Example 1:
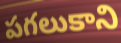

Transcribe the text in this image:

పగలుకాని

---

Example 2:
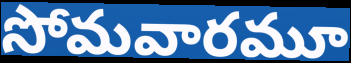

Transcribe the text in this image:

సోమవారమూ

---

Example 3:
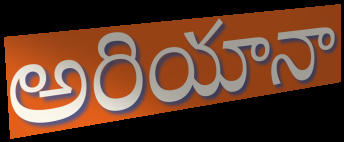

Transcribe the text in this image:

అరియానా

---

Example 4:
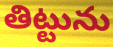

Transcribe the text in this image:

తిట్టును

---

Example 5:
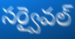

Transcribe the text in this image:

సర్వైవల్